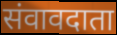
संवावदाता